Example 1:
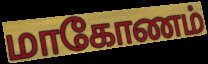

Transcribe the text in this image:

மாகோணம்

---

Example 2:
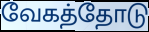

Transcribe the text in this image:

வேகத்தோடு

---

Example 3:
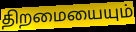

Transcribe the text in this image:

திறமையையும்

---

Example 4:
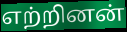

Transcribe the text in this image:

எற்றினன்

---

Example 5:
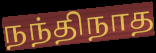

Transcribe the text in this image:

நந்திநாத